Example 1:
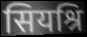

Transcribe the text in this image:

सियश्रि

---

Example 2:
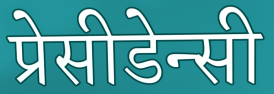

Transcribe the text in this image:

प्रेसीडेन्सी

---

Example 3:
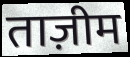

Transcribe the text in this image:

ताज़ीम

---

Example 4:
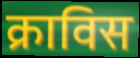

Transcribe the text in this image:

क्राविस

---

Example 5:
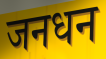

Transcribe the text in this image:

जनधन